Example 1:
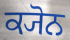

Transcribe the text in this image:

ਕ੍ਯੋਨ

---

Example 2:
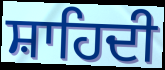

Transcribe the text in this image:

ਸ਼ਾਹਿਦੀ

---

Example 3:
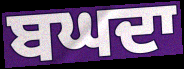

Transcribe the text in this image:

ਬਘਦਾ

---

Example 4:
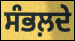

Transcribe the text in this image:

ਸੰਭਲ਼ਦੇ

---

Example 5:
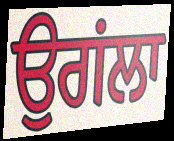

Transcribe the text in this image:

ਉਗਂਲਾ